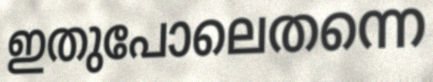
ഇതുപോലെതന്നെ